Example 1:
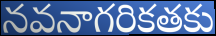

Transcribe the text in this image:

నవనాగరికతకు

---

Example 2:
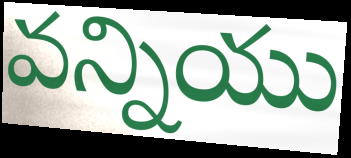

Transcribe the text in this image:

వన్నియు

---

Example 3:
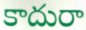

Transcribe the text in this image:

కాదురా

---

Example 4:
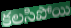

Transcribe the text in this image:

కలసిపోయి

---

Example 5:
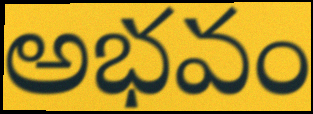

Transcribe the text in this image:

అభవం